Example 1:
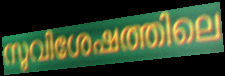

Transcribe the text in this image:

സുവിശേഷത്തിലെ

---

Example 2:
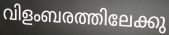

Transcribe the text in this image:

വിളംബരത്തിലേക്കു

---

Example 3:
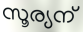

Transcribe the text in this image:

സൂര്യന്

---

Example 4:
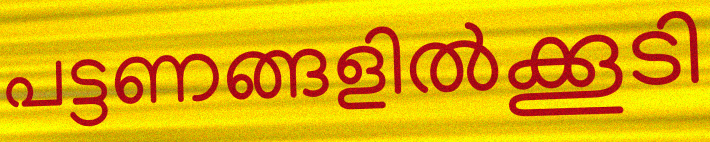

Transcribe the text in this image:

പട്ടണങ്ങളിൽക്കൂടി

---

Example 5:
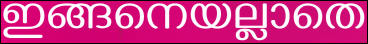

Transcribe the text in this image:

ഇങ്ങനെയല്ലാതെ